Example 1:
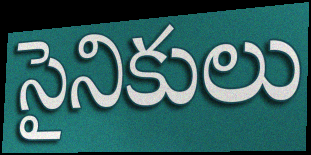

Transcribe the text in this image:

సైనికులు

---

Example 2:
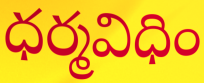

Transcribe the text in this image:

ధర్మవిధిం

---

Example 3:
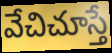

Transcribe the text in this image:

వేచిచూస్తే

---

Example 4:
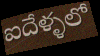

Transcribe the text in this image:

ఐదేళ్ళలో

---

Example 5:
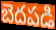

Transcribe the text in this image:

బెదపడి